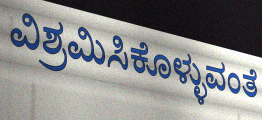
ವಿಶ್ರಮಿಸಿಕೊಳ್ಳುವಂತೆ